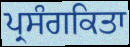
ਪ੍ਰਸੰਗਕਿਤਾ